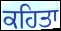
ਕਹਿਤਾ